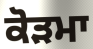
ਕੋੜਮਾ